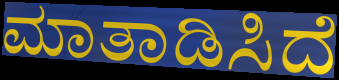
ಮಾತಾಡಿಸಿದೆ